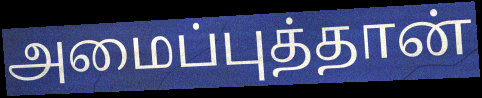
அமைப்புத்தான்